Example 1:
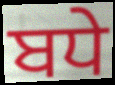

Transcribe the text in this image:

ਬਧੇ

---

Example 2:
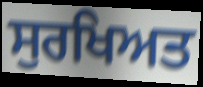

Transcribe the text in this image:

ਸੁਰਖਿਅਤ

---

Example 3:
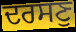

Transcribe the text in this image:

ਦਰਸਣੁ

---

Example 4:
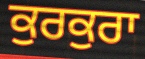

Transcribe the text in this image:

ਕੁਰਕੁਰਾ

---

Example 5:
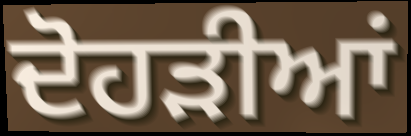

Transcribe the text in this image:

ਦੋਹੜੀਆਂ